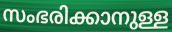
സംഭരിക്കാനുള്ള